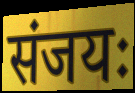
संजयः